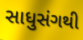
સાધુસંગથી